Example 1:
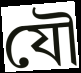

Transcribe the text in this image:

যৌ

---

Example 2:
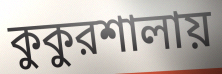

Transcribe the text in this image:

কুকুরশালায়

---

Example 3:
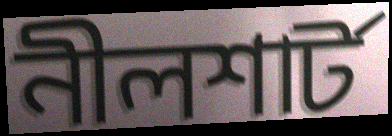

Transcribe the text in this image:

নীলশার্ট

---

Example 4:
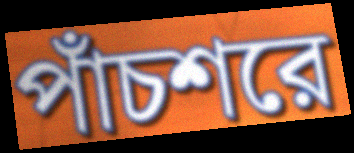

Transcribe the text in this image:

পাঁচশরে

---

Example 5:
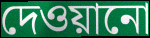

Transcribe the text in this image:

দেওয়ানো